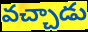
వచ్చాడు